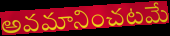
అవమానించటమే